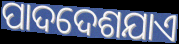
ପାଦଦେଶଯାଏ